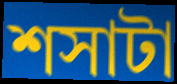
শসাটা